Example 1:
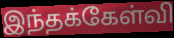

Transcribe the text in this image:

இந்தக்கேள்வி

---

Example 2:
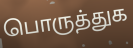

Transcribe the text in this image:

பொருத்துக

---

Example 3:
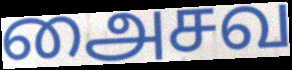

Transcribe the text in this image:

அைசவ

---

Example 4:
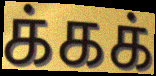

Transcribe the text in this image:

க்கக்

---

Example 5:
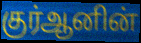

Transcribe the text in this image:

குர்ஆனின்